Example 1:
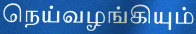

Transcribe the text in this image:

நெய்வழங்கியும்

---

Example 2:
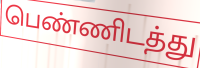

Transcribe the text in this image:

பெண்ணிடத்து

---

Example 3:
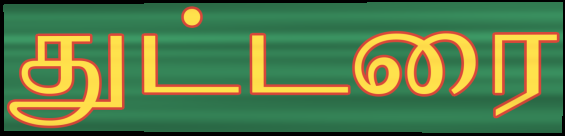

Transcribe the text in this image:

துட்டரை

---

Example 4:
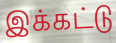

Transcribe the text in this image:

இக்கட்டு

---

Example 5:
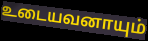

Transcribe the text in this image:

உடையவனாயும்